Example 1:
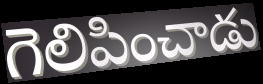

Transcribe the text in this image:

గెలిపించాడు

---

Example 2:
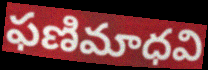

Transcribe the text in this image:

ఫణిమాధవి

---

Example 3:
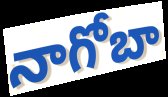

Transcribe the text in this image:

నాగోబా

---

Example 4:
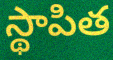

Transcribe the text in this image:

స్థాపిత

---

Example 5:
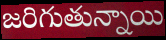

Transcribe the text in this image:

జరిగుతున్నాయి